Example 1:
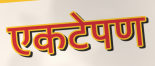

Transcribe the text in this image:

एकटेपण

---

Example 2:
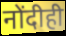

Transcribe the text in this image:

नोंदीही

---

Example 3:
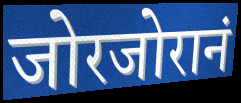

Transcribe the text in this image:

जोरजोरानं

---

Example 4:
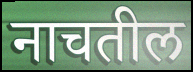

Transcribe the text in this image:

नाचतील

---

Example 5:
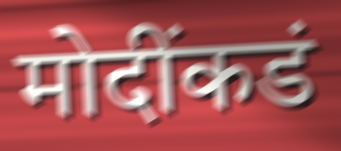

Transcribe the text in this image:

मोदींकडं